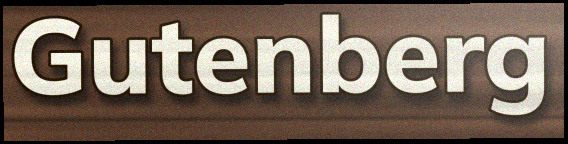
Gutenberg